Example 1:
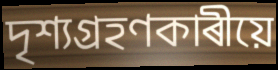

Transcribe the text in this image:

দৃশ্যগ্ৰহণকাৰীয়ে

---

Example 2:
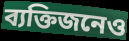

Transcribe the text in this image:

ব্যক্তিজনেও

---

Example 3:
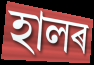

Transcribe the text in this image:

হালৰ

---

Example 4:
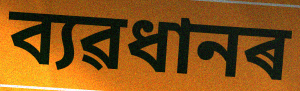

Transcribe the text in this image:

ব্যৱধানৰ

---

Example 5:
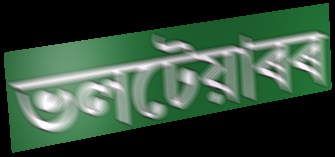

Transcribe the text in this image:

ভলটেয়াৰৰ